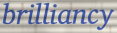
brilliancy